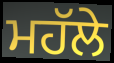
ਮਹੱਲੇ